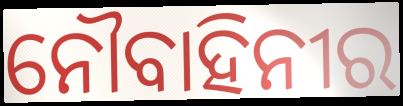
ନୌବାହିନୀର